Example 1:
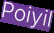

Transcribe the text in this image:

Poiyil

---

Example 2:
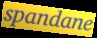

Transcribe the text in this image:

spandane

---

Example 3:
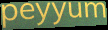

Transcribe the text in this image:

peyyum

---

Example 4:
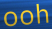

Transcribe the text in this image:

ooh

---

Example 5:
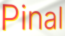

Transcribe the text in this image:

Pinal